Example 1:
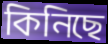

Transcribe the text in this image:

কিনিছে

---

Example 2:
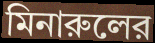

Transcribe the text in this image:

মিনারুলের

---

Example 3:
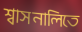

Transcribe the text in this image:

শ্বাসনালিতে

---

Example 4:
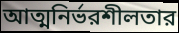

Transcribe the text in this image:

আত্মনির্ভরশীলতার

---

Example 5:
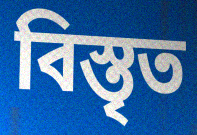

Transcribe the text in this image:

বিস্তৃত